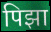
पिझा